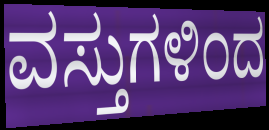
ವಸ್ತುಗಳಿಂದ